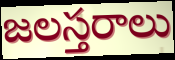
జలస్తరాలు